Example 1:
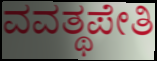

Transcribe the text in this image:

ವವತ್ಥಪೇತಿ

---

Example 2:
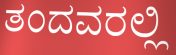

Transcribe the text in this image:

ತಂದವರಲ್ಲಿ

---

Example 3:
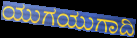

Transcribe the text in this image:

ಯುಗಯುಗಾದಿ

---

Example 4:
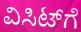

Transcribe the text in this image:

ವಿಸಿಟ್‌ಗೆ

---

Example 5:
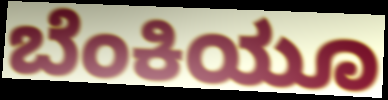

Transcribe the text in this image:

ಬೆಂಕಿಯೂ